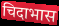
चिदाभास